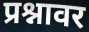
प्रश्नावर